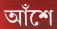
আঁশে